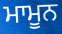
ਮਾਮੂਨ